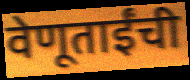
वेणूताईंची